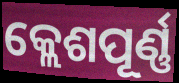
କ୍ଲେଶପୂର୍ଣ୍ଣ